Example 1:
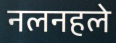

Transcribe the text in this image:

नलनहले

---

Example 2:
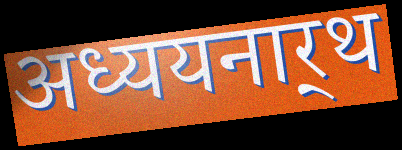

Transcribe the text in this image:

अध्ययनार्थ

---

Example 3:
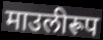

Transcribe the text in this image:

माउलीरूप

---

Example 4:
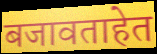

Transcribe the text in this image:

बजावताहेत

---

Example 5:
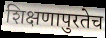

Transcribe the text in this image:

शिक्षणापुरतेच